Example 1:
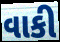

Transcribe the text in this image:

વાકી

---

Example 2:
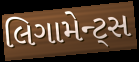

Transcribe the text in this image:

લિગામેન્ટ્સ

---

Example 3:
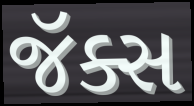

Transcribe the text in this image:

જૅક્સ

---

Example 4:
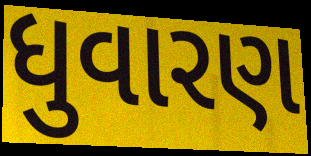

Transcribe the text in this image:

ધુવારણ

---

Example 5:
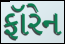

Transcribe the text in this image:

ફૉરેન